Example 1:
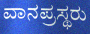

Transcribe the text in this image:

ವಾನಪ್ರಸ್ಥರು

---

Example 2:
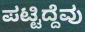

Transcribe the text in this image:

ಪಟ್ಟಿದ್ದೆವು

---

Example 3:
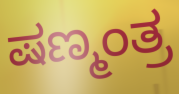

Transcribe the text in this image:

ಷಣ್ಮಂತ್ರ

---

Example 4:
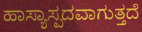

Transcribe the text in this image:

ಹಾಸ್ಯಾಸ್ಪದವಾಗುತ್ತದೆ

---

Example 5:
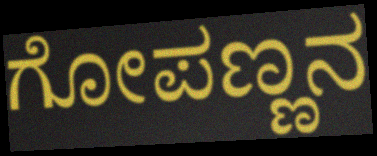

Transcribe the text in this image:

ಗೋಪಣ್ಣನ